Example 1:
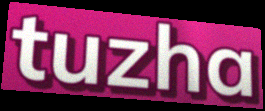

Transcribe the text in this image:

tuzha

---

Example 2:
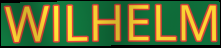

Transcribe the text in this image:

WILHELM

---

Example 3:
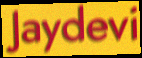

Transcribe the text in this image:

Jaydevi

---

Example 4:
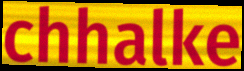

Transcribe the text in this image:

chhalke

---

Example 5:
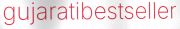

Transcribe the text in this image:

gujaratibestseller